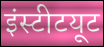
इंस्टीटयूट